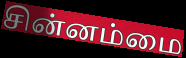
சின்னம்மை